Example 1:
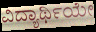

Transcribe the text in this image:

ವಿದ್ಯಾರ್ಥಿಯೇ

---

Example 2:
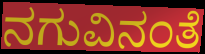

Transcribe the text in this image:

ನಗುವಿನಂತೆ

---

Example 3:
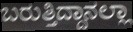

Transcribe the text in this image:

ಬರುತ್ತಿದ್ದಾನಲ್ಲಾ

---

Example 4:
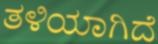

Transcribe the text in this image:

ತಳಿಯಾಗಿದೆ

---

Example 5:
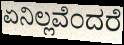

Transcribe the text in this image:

ಏನಿಲ್ಲವೆಂದರೆ